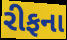
રીફના